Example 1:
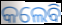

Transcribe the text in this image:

କଲେବି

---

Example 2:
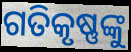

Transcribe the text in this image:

ଗତିକୃଷ୍ଣଙ୍କୁ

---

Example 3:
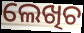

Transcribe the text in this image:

ଲେଖିଚ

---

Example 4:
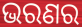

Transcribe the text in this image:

ଭରଣର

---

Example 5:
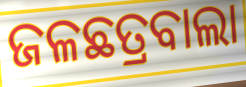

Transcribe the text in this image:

ଜଳଛତ୍ରବାଲା